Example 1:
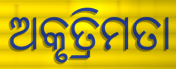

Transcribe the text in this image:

ଅକୃତ୍ରିମତା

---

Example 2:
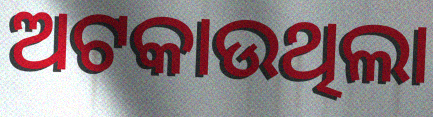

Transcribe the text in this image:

ଅଟକାଉଥିଲା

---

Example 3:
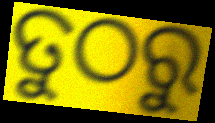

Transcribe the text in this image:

ତୁଠରୁ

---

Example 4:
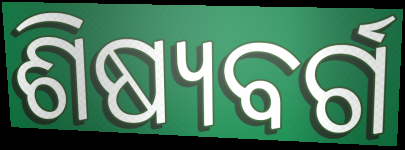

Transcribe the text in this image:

ଶିଷ୍ୟବର୍ଗ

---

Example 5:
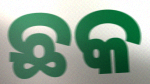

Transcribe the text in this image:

ଛକ